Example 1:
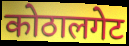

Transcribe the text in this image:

कोठालगेट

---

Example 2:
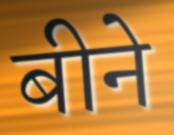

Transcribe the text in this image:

बीने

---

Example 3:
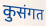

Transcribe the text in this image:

कुसंगत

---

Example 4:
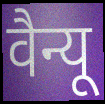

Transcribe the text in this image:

वैन्यू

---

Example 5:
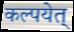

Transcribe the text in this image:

कल्पयेत्